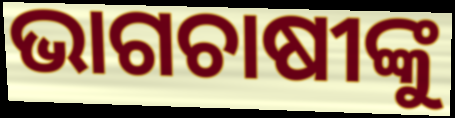
ଭାଗଚାଷୀଙ୍କୁ